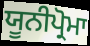
ਯੂਨੀਪ੍ਰੋਮਾ